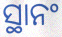
ସ୍ଥାନଂ